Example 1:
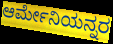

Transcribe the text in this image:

ಆರ್ಮೇನಿಯನ್ನರ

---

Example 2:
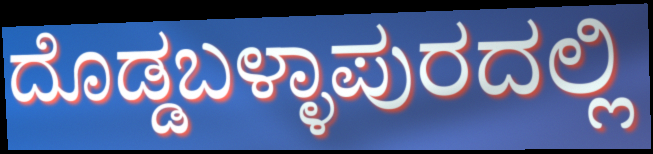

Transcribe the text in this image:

ದೊಡ್ಡಬಳ್ಳಾಪುರದಲ್ಲಿ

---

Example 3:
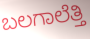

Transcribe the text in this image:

ಬಲಗಾಲೆತ್ತಿ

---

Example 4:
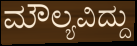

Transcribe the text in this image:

ಮೌಲ್ಯವಿದ್ದು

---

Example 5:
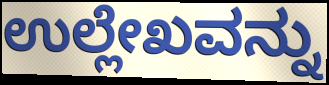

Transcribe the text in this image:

ಉಲ್ಲೇಖವನ್ನು